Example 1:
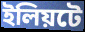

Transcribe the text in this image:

ইলিয়টে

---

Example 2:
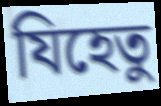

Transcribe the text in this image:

যিহেতু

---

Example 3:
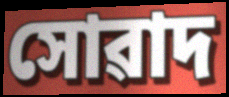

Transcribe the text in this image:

সোৱাদ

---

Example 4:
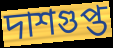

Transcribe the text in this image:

দাশগুপ্ত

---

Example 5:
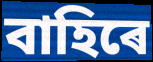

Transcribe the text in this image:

বাহিৰে